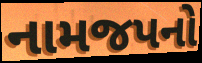
નામજપનો